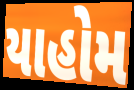
યાહોમ